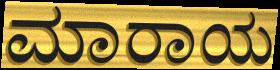
ಮಾರಾಯ